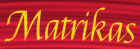
Matrikas